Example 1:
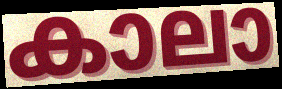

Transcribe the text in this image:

കാലാ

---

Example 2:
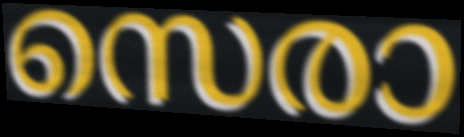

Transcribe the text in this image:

സെരാ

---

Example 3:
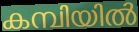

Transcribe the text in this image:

കമ്പിയിൽ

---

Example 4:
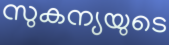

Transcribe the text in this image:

സുകന്യയുടെ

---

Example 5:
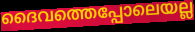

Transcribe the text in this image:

ദൈവത്തെപ്പോലെയല്ല